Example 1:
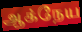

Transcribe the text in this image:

ஆக்நேய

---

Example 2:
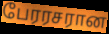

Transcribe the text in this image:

பேரரசரான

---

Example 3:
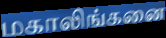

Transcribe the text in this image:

மகாலிங்கனை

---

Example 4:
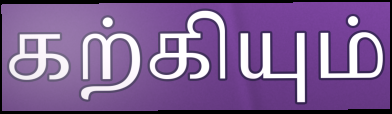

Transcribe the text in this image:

கற்கியும்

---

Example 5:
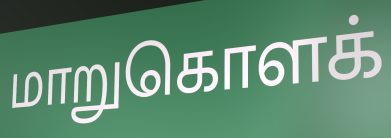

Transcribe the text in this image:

மாறுகொளக்